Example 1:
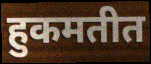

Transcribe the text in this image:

हुकमतीत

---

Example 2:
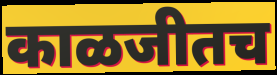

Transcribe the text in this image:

काळजीतच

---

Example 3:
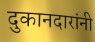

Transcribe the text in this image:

दुकानदारांनी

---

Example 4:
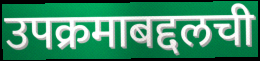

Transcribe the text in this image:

उपक्रमाबद्दलची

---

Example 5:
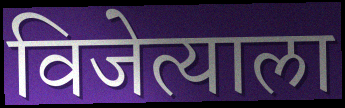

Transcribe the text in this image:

विजेत्याला